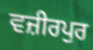
ਵਜ਼ੀਰਪੁਰ